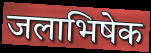
जलाभिषेक